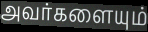
அவர்களையும்